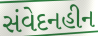
સંવેદનહીન